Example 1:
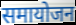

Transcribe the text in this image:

समायोजन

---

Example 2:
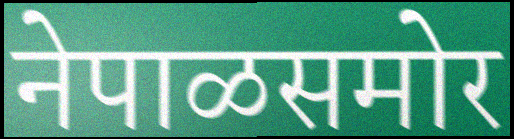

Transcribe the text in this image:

नेपाळसमोर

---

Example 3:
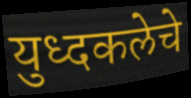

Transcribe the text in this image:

युध्दकलेचे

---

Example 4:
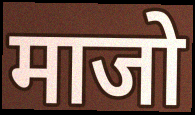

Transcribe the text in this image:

माजो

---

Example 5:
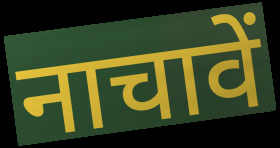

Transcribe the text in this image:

नाचावें